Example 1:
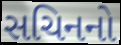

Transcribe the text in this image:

સચિનનો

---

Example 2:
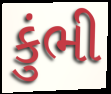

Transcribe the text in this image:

કુંભી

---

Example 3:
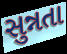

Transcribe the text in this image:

સુન્નતા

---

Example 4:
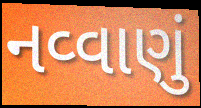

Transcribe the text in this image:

નવ્વાણું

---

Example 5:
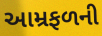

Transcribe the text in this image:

આમ્રફળની